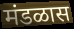
मंडळास